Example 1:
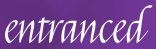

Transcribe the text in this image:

entranced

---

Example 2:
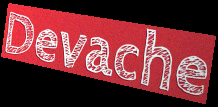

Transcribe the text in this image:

Devache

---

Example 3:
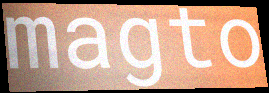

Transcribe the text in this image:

magto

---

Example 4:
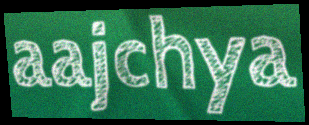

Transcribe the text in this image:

aajchya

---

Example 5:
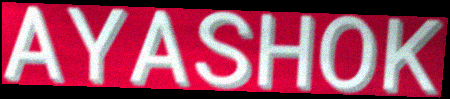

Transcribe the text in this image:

AYASHOK